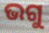
ଭଗୁ